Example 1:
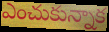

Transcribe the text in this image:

ఎంచుకున్నాక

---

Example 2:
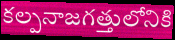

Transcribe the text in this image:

కల్పనాజగత్తులోనికి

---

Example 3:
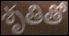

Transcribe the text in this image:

శృతితో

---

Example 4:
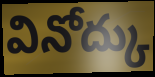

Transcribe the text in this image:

వినోద్కు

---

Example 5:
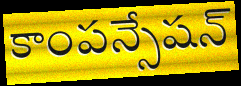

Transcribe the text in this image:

కాంపన్సేషన్